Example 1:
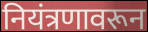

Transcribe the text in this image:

नियंत्रणावरून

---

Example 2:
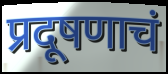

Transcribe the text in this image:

प्रदूषणाचं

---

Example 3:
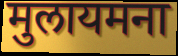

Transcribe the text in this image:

मुलायमना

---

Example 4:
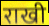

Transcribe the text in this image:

राखी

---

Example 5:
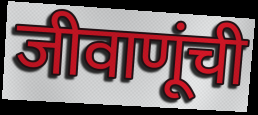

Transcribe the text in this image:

जीवाणूंची